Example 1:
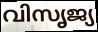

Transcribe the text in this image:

വിസൃജ്യ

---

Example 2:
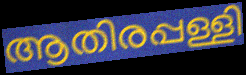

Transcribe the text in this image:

ആതിരപ്പള്ളി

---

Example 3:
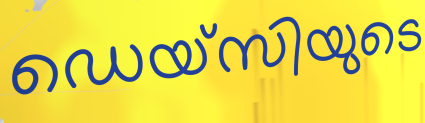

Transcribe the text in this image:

ഡെയ്സിയുടെ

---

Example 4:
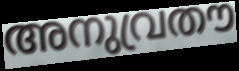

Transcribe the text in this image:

അനുവ്രതൗ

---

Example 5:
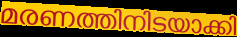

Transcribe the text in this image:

മരണത്തിനിടയാക്കി